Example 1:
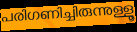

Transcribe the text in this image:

പരിഗണിച്ചിരുന്നുള്ളൂ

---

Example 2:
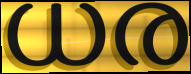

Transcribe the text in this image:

ധര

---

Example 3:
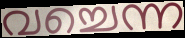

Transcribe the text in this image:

വച്ചെന്ന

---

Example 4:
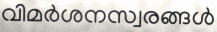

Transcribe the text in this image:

വിമർശനസ്വരങ്ങൾ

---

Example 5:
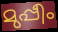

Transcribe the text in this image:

മുപ്പീം